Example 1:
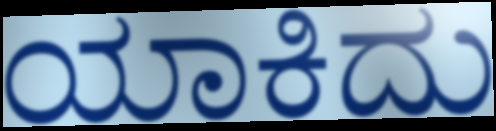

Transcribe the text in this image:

ಯಾಕಿದು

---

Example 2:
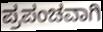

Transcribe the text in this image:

ಪ್ರಪಂಚವಾಗಿ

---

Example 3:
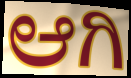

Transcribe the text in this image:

ಆಗಿ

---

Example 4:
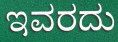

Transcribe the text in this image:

ಇವರದು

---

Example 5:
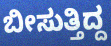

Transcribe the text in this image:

ಬೀಸುತ್ತಿದ್ದ